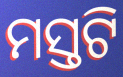
ମସ୍ତଟି